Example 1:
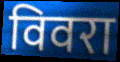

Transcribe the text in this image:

विवरा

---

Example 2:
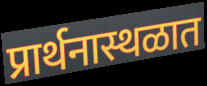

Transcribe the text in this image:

प्रार्थनास्थळात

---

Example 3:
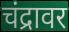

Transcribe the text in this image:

चंद्रावर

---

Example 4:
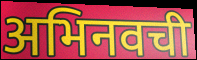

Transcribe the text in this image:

अभिनवची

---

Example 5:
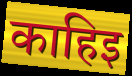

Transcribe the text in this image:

काहिइ